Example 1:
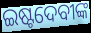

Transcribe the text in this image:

ଇଷ୍ଟଦେବୀଙ୍କ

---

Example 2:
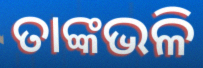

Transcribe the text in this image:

ତାଙ୍କଭଳି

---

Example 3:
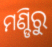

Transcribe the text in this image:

ମଣ୍ଡିରୁ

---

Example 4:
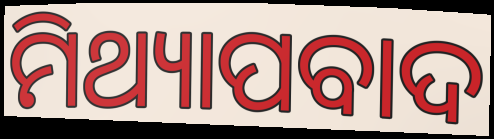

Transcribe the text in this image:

ମିଥ୍ୟାପବାଦ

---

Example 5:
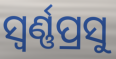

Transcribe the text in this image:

ସ୍ୱର୍ଣ୍ଣପ୍ରସୁ